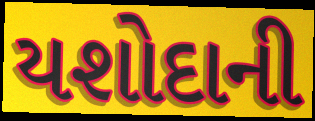
યશોદાની